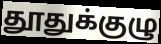
தூதுக்குழு